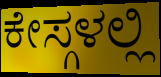
ಕೇಸ್ಗಳಲ್ಲಿ